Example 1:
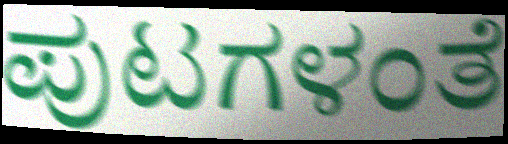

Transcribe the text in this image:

ಪುಟಗಳಂತೆ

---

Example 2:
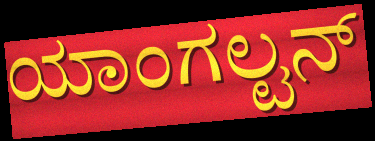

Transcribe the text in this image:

ಯಾಂಗಲ್ಟನ್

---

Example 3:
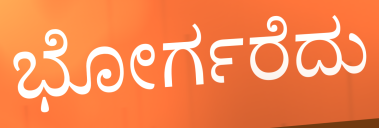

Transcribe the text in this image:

ಭೋರ್ಗರೆದು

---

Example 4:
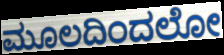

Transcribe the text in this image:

ಮೂಲದಿಂದಲೋ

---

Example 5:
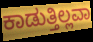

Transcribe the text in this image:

ಕಾಡುತ್ತಿಲ್ಲವಾ